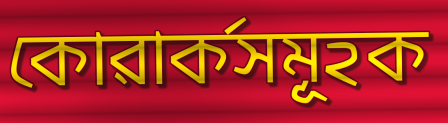
কোৱাৰ্কসমূহক